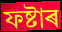
ফষ্টাৰ